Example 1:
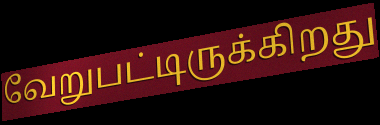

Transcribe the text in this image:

வேறுபட்டிருக்கிறது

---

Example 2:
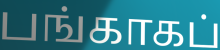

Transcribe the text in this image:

பங்காகப்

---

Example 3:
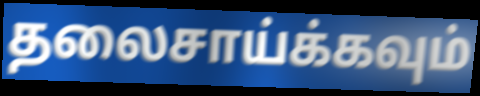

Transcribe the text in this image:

தலைசாய்க்கவும்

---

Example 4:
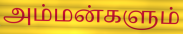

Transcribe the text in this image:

அம்மன்களும்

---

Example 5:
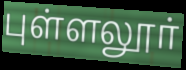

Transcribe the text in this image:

புள்ளலூர்